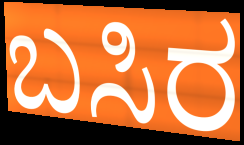
ಬಸಿರ